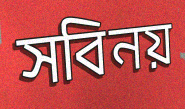
সবিনয়